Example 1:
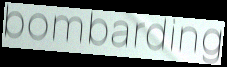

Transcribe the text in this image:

bombarding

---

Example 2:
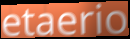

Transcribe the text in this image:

etaerio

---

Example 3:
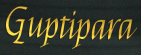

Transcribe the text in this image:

Guptipara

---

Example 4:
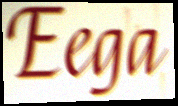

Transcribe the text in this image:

Eega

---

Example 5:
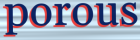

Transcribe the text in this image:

porous